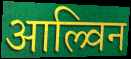
आल्विन